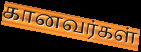
கானவர்கள்